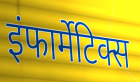
इंफार्मेटिक्स